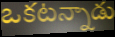
ఒకటన్నాడు